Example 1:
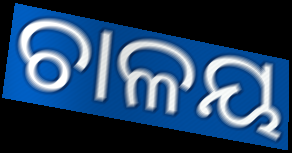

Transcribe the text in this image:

ଚାଳୟ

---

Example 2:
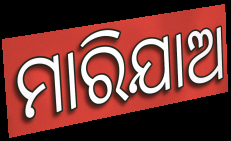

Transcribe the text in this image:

ମାରିଯାଅ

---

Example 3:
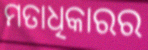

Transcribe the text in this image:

ମତାଧିକାରର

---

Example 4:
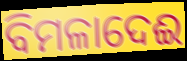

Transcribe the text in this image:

ବିମଳାଦେଈ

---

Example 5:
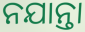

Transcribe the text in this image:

ନଯାନ୍ତା